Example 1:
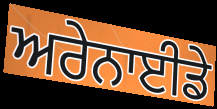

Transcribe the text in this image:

ਅਰੇਨਾਈਡੇ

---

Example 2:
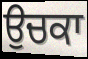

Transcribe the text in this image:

ਉਚਕਾ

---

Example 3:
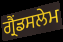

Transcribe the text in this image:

ਗ੍ਰੈਂਡਸਲੇਮ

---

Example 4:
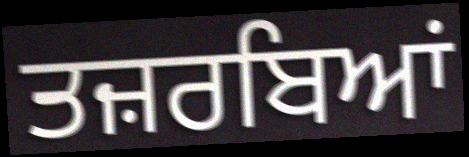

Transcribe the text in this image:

ਤਜ਼ਰਬਿਆਂ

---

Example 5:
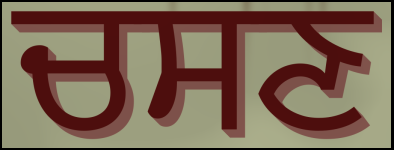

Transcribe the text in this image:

ਚਸਣ